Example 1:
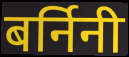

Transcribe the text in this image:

बर्निनी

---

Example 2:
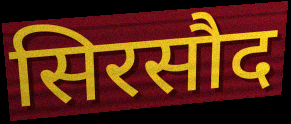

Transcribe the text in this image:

सिरसौद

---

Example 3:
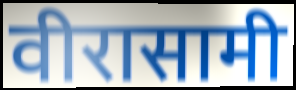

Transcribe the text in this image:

वीरासामी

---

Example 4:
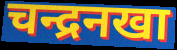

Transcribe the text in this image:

चन्द्रनखा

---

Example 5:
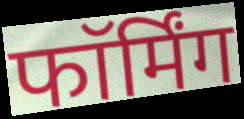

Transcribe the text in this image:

फॉर्मिंग